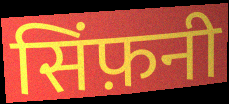
सिंफ़नी